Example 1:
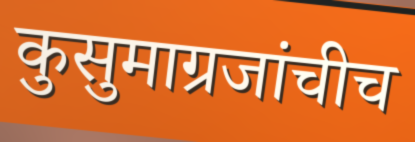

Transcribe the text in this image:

कुसुमाग्रजांचीच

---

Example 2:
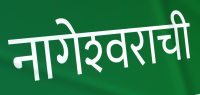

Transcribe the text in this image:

नागेश्‍वराची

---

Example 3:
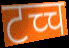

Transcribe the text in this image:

टच्च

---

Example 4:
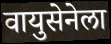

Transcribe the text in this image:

वायुसेनेला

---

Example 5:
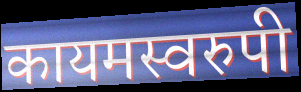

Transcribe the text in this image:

कायमस्वरुपी